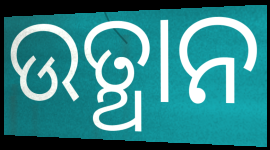
ଉତ୍ଥାନ